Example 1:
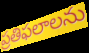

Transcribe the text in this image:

ప్రతిఫలాలను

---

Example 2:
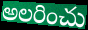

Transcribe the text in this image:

అలరించు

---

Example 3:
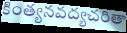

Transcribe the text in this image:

కింత్యనవద్యచరితా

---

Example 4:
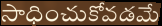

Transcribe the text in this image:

సాధించుకోవడమే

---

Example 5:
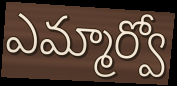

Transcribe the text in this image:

ఎమ్మార్వో